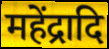
महेंद्रादि